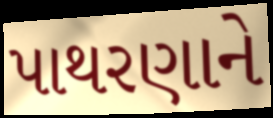
પાથરણાને